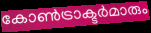
കോൺട്രാക്ടർമാരും